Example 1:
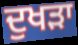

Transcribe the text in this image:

ਦੁਖੜਾ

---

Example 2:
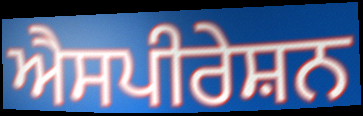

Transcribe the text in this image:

ਐਸਪੀਰੇਸ਼ਨ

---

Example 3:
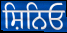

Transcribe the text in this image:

ਸ਼ਿਨਿਓ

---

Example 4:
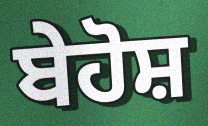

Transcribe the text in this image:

ਬੇਹੋਸ਼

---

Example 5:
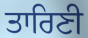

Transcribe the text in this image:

ਤਾਰਿਣੀ